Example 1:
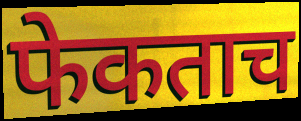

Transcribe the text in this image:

फेकताच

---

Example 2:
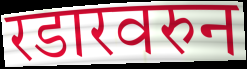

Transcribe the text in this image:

रडारवरुन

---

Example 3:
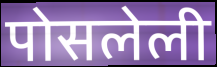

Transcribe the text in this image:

पोसलेली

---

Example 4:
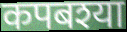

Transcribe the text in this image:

कपबश्या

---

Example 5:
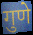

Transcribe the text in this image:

गुणे